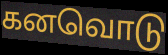
கனவொடு